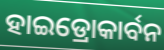
ହାଇଡ୍ରୋକାର୍ବନ